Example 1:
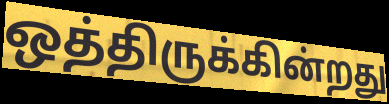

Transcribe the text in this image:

ஒத்திருக்கின்றது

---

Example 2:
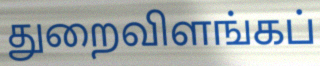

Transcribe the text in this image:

துறைவிளங்கப்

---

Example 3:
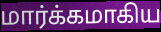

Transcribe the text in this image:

மார்க்கமாகிய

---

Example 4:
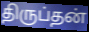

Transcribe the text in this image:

திருப்தன்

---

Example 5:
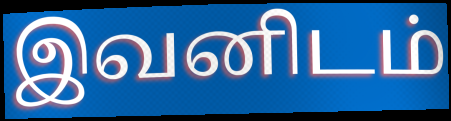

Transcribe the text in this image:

இவனிடம்